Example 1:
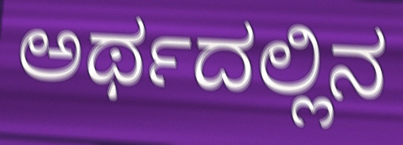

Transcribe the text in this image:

ಅರ್ಥದಲ್ಲಿನ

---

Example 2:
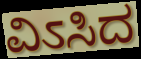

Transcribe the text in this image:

ವಿಽಸಿದ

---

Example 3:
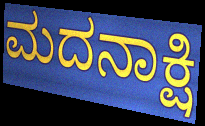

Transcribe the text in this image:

ಮದನಾಕ್ಷಿ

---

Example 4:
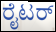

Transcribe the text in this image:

ರೈಟರ್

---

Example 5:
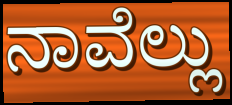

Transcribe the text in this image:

ನಾವೆಲ್ಲು